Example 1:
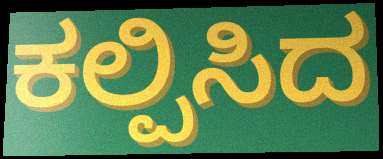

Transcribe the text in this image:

ಕಲ್ಪಿಸಿದ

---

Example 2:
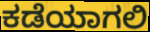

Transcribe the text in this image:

ಕಡೆಯಾಗಲಿ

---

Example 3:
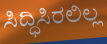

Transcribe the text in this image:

ಸಿದ್ಧಿಸಿರಲಿಲ್ಲ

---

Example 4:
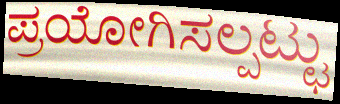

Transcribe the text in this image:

ಪ್ರಯೋಗಿಸಲ್ಪಟ್ಟು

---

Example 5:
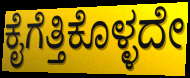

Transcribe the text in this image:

ಕೈಗೆತ್ತಿಕೊಳ್ಳದೇ